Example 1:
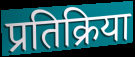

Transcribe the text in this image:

प्रतिक्रिया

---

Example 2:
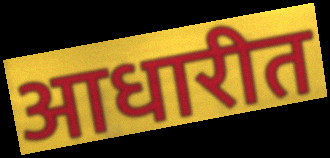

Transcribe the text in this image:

आधारीत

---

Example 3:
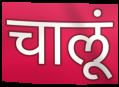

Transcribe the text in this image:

चालूं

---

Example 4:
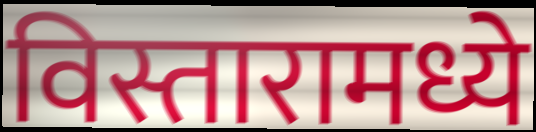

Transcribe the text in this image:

विस्तारामध्ये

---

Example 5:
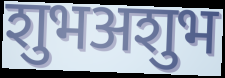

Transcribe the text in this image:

शुभअशुभ